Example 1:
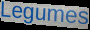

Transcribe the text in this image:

Legumes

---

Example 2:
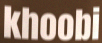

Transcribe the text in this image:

khoobi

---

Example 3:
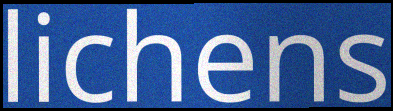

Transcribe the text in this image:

lichens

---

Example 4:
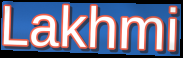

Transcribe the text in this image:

Lakhmi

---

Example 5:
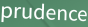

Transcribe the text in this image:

prudence